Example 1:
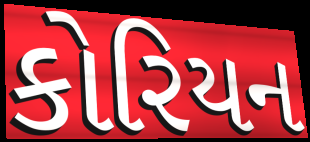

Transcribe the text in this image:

કોરિયન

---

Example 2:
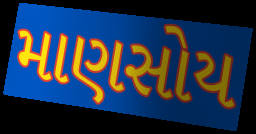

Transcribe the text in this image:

માણસોય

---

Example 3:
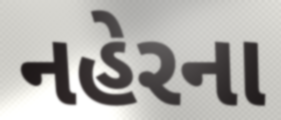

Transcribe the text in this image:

નહેરના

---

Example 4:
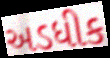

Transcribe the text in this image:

અડધીક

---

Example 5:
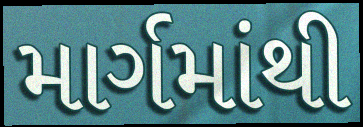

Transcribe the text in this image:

માર્ગમાંથી